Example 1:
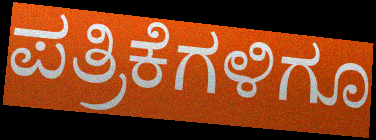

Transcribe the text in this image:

ಪತ್ರಿಕೆಗಳಿಗೂ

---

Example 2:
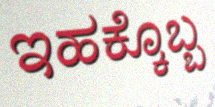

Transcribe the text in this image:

ಇಹಕ್ಕೊಬ್ಬ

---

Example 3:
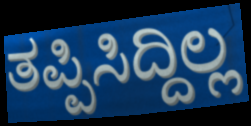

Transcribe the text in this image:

ತಪ್ಪಿಸಿದ್ದಿಲ್ಲ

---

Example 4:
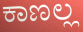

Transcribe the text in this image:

ಕಾಣಲ್ಲ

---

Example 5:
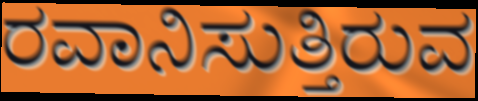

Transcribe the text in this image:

ರವಾನಿಸುತ್ತಿರುವ